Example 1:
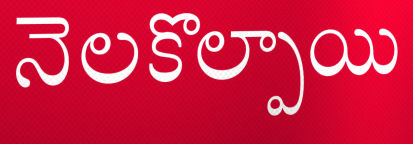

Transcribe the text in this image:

నెలకొల్పాయి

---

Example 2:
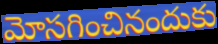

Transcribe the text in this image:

మోసగించినందుకు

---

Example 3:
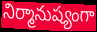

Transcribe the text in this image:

నిర్మానుష్యంగా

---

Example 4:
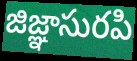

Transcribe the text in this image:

జిజ్ఞాసురపి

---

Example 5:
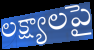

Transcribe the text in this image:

లక్ష్యాలపై